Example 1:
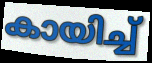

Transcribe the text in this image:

കായിച്ച്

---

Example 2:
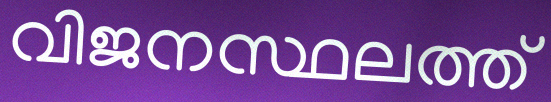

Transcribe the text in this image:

വിജനസ്ഥലത്ത്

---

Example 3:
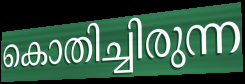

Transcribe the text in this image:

കൊതിച്ചിരുന്ന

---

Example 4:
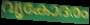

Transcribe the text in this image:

വൃകോദരം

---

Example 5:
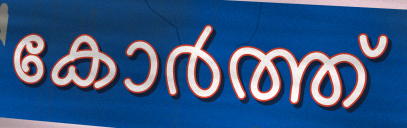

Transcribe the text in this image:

കോർത്ത്